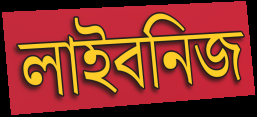
লাইবনিজ